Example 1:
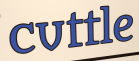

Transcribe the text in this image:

cuttle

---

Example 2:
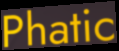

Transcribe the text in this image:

Phatic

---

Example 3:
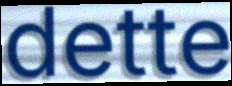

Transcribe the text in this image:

dette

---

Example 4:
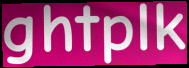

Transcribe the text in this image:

ghtplk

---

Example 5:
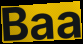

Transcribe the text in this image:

Baa